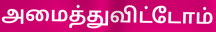
அமைத்துவிட்டோம்